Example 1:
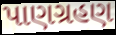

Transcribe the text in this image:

પાણગ્રહણ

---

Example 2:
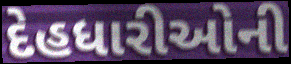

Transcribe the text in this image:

દેહધારીઓની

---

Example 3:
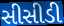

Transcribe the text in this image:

સીસીડી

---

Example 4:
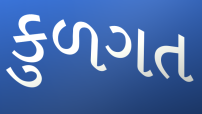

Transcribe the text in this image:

કુળગત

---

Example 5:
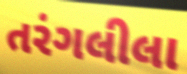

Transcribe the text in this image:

તરંગલીલા